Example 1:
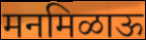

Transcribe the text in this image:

मनमिळाऊ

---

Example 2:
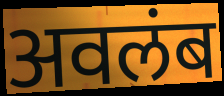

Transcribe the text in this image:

अवलंब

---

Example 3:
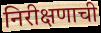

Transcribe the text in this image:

निरीक्षणाची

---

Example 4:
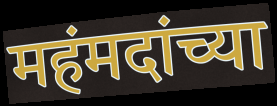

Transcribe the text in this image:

महंमदांच्या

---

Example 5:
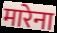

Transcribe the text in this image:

मारेना